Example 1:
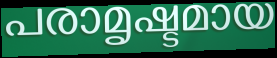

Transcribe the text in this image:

പരാമൃഷ്ടമായ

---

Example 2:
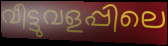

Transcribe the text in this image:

വീട്ടുവളപ്പിലെ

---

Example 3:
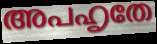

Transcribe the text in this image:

അപഹൃതേ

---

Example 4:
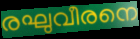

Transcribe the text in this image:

രഘുവീരനെ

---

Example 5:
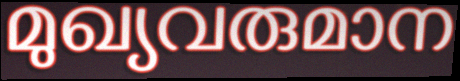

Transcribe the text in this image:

മുഖ്യവരുമാന